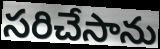
సరిచేసాను